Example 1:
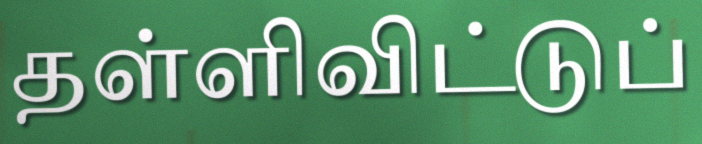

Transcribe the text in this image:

தள்ளிவிட்டுப்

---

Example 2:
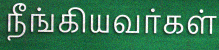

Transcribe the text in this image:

நீங்கியவர்கள்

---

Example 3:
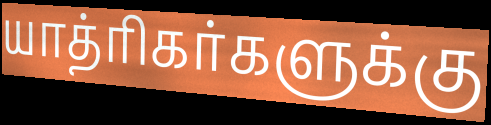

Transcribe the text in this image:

யாத்ரிகர்களுக்கு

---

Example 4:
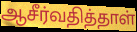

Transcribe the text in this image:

ஆசீர்வதித்தாள்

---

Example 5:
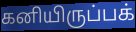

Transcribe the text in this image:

கனியிருப்பக்